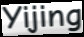
Yijing